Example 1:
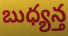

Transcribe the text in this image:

బుధ్యన్త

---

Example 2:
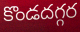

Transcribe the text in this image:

కొండదగ్గర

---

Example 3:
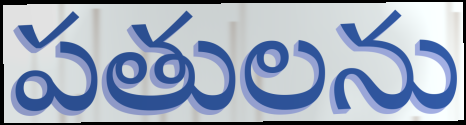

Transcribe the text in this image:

పతులను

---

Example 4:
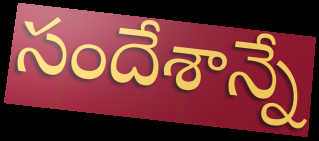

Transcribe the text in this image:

సందేశాన్నే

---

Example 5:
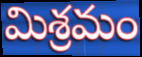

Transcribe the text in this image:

మిశ్రమం